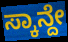
ಸ್ಕಾನ್ದೇ